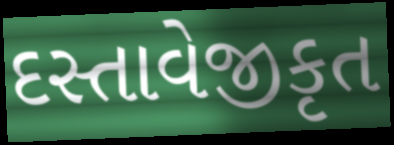
દસ્તાવેજીકૃત